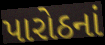
પારોઠનાં